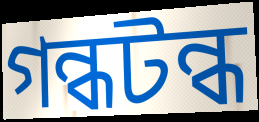
গন্ধটন্ধ